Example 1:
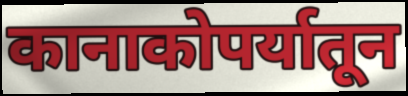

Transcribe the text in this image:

कानाकोपर्यातून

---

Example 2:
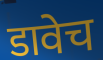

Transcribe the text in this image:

डावेच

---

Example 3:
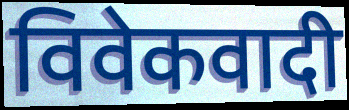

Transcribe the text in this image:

विवेकवादी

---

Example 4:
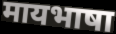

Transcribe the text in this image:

मायभाषा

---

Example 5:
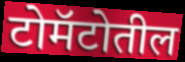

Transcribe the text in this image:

टोमॅटोतील